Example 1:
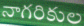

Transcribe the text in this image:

నాగరికుల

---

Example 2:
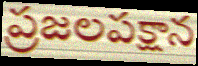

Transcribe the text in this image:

ప్రజలపక్షాన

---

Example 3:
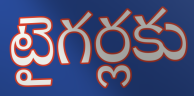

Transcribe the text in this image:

టైగర్లకు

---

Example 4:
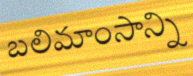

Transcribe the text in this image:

బలిమాంసాన్ని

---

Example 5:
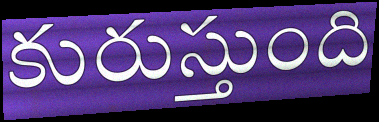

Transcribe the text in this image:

కురుస్తుంది